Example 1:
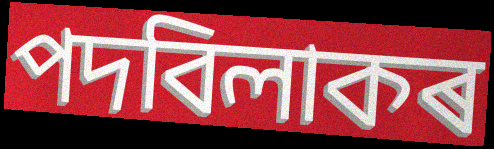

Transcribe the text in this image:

পদবিলাকৰ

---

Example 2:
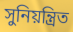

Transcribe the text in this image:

সুনিয়ন্ত্ৰিত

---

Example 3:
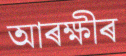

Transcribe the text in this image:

আৰক্ষীৰ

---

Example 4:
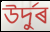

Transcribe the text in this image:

উৰ্দুৰ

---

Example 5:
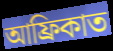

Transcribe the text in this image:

আফ্ৰিকাত